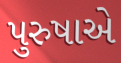
પુરુષાએ